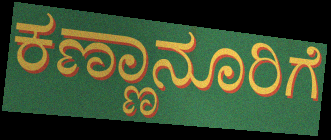
ಕಣ್ಣಾನೂರಿಗೆ